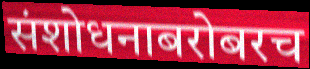
संशोधनाबरोबरच